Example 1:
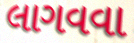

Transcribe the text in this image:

લાગવવા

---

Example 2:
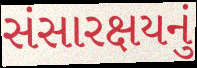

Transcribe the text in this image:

સંસારક્ષયનું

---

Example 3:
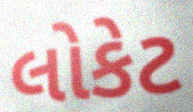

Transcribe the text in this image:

લોકેટ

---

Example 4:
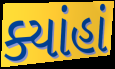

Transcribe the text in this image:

ક્યાંહાં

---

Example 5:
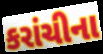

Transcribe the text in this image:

કરાંચીના